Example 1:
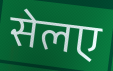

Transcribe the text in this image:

सेलए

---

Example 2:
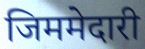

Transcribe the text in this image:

जिममेदारी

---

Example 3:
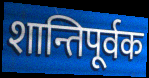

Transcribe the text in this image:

शान्तिपूर्वक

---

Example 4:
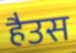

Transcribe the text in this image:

हैउस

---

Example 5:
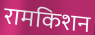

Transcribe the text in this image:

रामकिशन